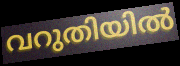
വറുതിയിൽ